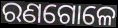
ରଣଗୋଳେ